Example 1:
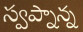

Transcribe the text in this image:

స్వప్నాన్న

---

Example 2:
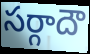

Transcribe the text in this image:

సర్గాదౌ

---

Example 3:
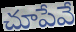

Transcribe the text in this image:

చూపేవే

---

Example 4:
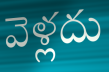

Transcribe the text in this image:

వెళ్లదు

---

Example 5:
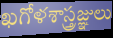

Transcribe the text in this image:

ఖగోళశాస్త్రజ్ఞులు